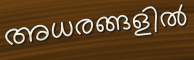
അധരങ്ങളിൽ